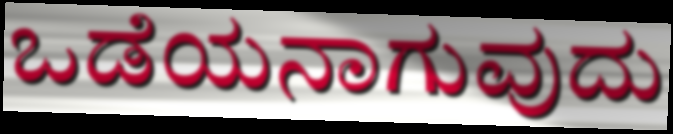
ಒಡೆಯನಾಗುವುದು